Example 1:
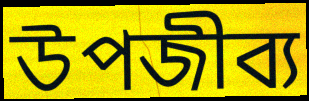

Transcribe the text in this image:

উপজীব্য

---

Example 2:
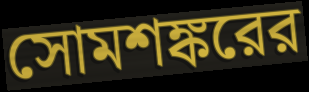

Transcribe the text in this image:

সোমশঙ্করের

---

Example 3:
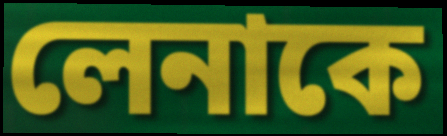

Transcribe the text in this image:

লেনাকে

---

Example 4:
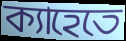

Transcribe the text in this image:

ক্যাহেতে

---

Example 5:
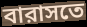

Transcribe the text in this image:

বারাসতে